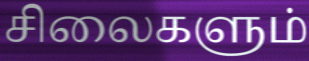
சிலைகளும்